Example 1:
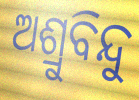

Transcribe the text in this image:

ଅଶ୍ରୁବିନ୍ଦୁ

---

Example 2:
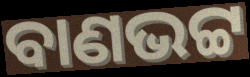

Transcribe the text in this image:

ବାଣଭଟ୍ଟ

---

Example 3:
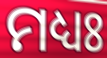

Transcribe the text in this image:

ମଧ୍ୟଃ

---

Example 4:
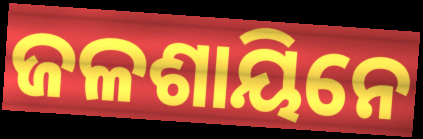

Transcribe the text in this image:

ଜଳଶାୟିନେ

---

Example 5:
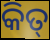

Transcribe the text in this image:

କିତ୍